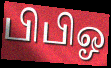
பிபிஓ